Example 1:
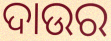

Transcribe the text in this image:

ଦାଉର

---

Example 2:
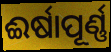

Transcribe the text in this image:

ଈର୍ଷାପୂର୍ଣ୍ଣ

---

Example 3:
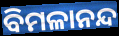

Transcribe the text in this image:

ବିମଳାନନ୍ଦ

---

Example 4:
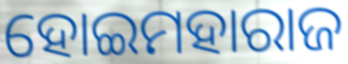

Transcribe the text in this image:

ହୋଇମହାରାଜ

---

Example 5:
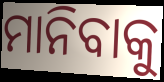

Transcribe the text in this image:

ମାନିବାକୁ